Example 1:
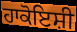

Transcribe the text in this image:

ਹਾਕੋਇਸ਼ੀ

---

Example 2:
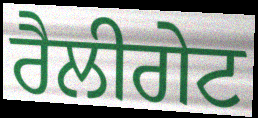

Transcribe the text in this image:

ਰੈਲੀਗੇਟ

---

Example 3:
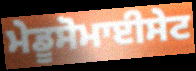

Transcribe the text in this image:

ਮੇਡੂਸੋਮਾਈਸੇਟ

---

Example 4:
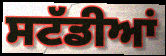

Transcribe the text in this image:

ਸਟੱਡੀਆਂ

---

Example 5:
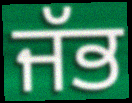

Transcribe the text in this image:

ਜੱਭ